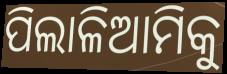
ପିଲାଳିଆମିକୁ